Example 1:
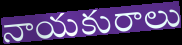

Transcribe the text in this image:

నాయకురాలు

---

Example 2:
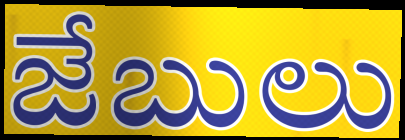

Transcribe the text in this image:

జేబులు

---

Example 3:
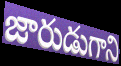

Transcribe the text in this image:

జారుడుగాని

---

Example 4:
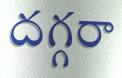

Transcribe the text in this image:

దగ్గరా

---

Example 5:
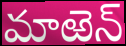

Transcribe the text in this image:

మాఱెన్